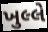
ખુલ્લે